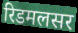
रिडमलसर